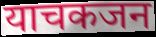
याचकजन